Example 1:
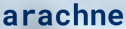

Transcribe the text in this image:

arachne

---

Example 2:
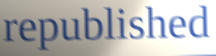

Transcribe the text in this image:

republished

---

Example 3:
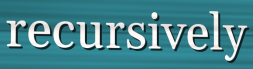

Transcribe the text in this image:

recursively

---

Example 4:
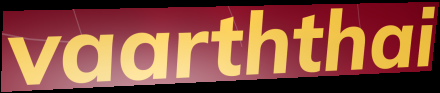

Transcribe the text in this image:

vaarththai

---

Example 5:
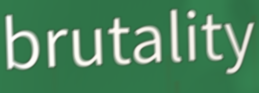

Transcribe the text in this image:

brutality